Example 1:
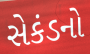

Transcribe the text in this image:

સેકંડનો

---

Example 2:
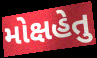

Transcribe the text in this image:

મોક્ષહેતુ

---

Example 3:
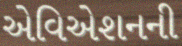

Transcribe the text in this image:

એવિએશનની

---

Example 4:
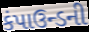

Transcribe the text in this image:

કંપાઉન્ડની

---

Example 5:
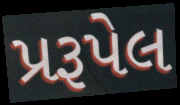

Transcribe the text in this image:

પ્રરૂપેલ